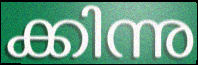
ക്കിന്നു